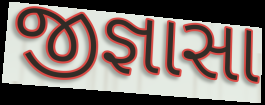
જીજ્ઞાસા